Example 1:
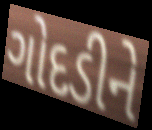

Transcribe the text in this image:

ગોદડીને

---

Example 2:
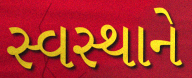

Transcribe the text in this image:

સ્વસ્થાને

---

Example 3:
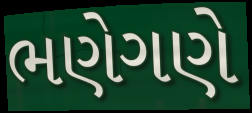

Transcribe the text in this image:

ભણેગણે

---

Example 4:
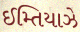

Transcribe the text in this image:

ઈમ્તિયાઝે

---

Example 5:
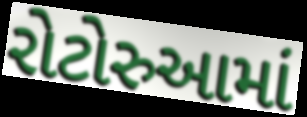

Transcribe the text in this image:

રોટોરુઆમાં